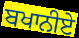
ਬਖਾਨੀਏ